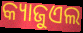
କ୍ୟାଜୁଏଲ